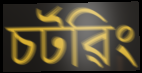
চৰ্টৱিং